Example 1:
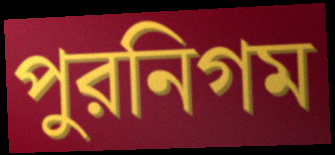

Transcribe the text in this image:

পুরনিগম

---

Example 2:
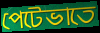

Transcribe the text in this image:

পেটেভাতে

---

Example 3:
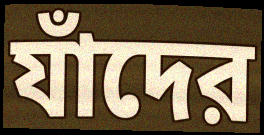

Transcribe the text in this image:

যাঁদের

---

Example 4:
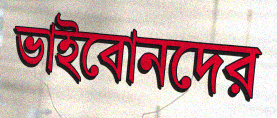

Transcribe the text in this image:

ভাইবোনদের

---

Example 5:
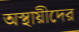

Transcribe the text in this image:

অস্থায়ীদের